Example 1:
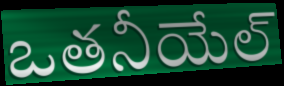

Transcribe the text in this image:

ఒతనీయేల్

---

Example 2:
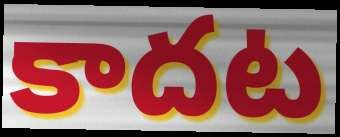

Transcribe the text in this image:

కాదట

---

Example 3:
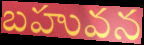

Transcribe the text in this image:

బహువన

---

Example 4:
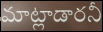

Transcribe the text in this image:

మాట్లాడారనీ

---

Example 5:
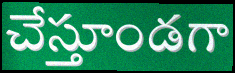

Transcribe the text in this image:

చేస్తూండగా